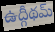
ఉద్గీథమ్